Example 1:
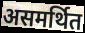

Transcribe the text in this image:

असमर्थित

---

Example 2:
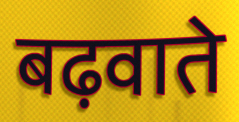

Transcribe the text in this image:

बढ़वाते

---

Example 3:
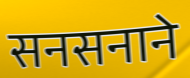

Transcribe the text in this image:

सनसनाने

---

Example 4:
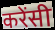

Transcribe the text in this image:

करेंसी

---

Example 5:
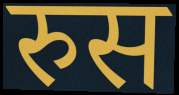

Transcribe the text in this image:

रुस